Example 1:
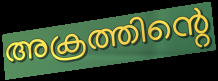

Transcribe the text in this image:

അക്രത്തിന്റെ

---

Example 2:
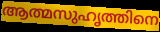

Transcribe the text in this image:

ആത്മസുഹൃത്തിനെ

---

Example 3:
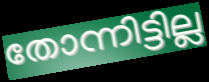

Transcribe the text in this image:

തോന്നിട്ടില്ല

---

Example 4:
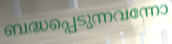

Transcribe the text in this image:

ബദ്ധപ്പെടുന്നവന്നോ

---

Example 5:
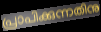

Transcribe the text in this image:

പ്രാപിക്കുന്നതിനു